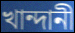
খান্দানী